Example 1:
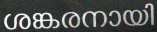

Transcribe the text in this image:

ശങ്കരനായി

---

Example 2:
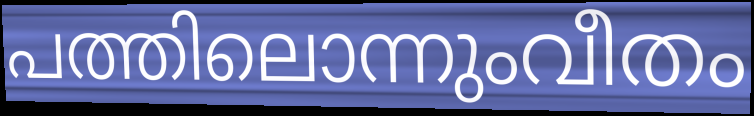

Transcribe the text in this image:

പത്തിലൊന്നുംവീതം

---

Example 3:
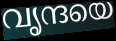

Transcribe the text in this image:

വൃന്ദയെ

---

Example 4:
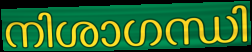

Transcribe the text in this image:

നിശാഗന്ധി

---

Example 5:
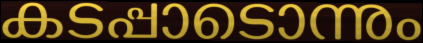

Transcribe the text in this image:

കടപ്പാടൊന്നും